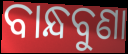
ବାନ୍ଧବୁଣା